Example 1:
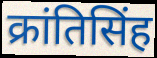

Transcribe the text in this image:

क्रांतिसिंह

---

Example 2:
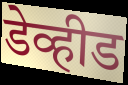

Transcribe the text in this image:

डेव्हीड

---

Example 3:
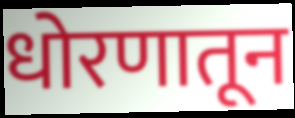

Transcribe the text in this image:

धोरणातून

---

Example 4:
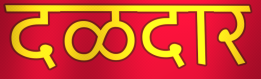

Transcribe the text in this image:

दळदार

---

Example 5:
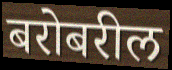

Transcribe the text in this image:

बरोबरील